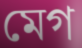
মেগ